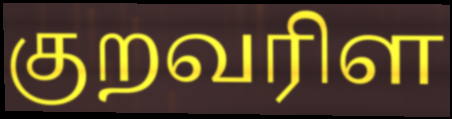
குறவரிள